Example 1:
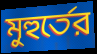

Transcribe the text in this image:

মুহুর্তের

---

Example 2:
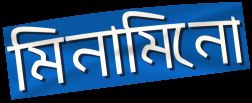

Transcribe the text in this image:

মিনামিনো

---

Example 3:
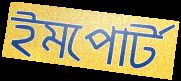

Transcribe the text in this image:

ইমপোর্ট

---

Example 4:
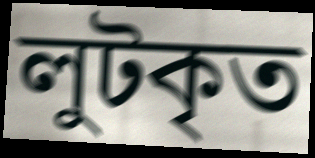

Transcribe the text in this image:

লুটকৃত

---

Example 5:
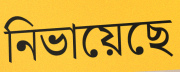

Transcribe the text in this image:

নিভায়েছে